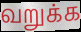
வறுக்க